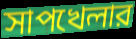
সাপখেলার